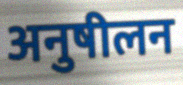
अनुषीलन